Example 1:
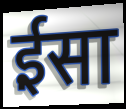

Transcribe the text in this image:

ई़सा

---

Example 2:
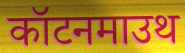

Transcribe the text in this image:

कॉटनमाउथ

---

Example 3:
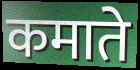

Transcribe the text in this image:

कमाते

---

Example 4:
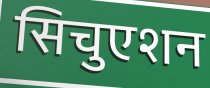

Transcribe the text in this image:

सिचुएशन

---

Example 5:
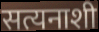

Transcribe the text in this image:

सत्यनाशी